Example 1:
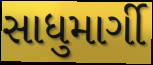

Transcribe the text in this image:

સાધુમાર્ગી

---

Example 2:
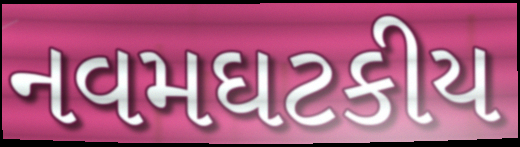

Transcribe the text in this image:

નવમઘટકીય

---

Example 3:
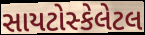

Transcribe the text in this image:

સાયટોસ્કેલેટલ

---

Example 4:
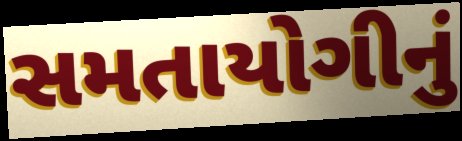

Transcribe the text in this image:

સમતાયોગીનું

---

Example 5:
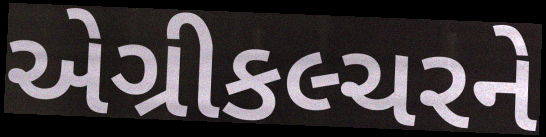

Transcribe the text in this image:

એગ્રીકલ્ચરને